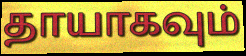
தாயாகவும்